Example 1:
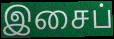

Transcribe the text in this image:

இசைப்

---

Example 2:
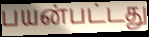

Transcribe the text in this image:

பயன்பட்டது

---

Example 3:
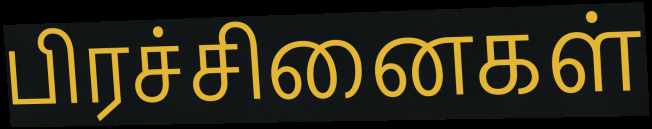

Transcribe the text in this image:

பிரச்சினைகள்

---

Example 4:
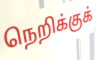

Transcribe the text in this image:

நெறிக்குக்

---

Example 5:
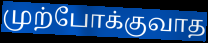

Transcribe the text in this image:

முற்போக்குவாத